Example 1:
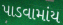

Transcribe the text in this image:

પાડવામાંય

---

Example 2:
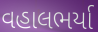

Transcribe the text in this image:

વહાલભર્યા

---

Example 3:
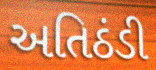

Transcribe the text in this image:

અતિઠંડી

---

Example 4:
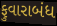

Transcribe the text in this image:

ફુવારાબંધ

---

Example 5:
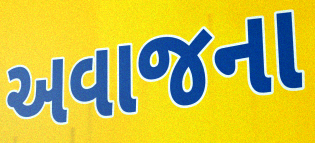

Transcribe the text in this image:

અવાજના